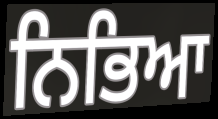
ਨਿਭਿਆ